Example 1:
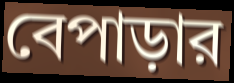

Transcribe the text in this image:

বেপাড়ার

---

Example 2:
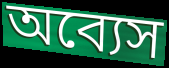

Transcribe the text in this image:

অব্যেস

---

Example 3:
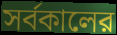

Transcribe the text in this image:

সর্বকালের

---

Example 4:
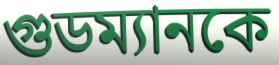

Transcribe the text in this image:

গুডম্যানকে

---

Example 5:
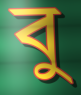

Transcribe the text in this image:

বু